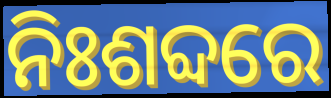
ନିଃଶବ୍ଦରେ